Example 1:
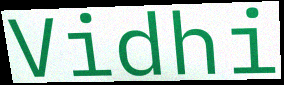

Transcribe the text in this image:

Vidhi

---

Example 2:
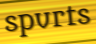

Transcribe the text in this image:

spurts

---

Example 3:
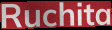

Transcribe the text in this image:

Ruchita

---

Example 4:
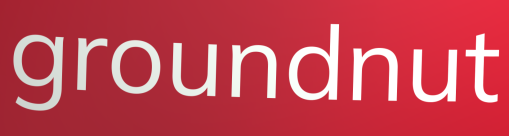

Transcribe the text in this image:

groundnut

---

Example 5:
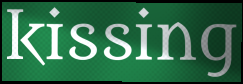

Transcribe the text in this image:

kissing